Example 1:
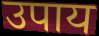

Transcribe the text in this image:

उपाय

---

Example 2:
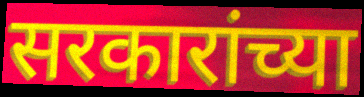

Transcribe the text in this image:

सरकारांच्या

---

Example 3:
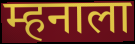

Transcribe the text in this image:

म्हनाला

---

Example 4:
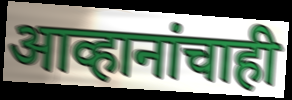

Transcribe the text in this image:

आव्हानांचाही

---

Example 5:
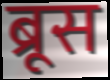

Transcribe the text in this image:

ब्रूस